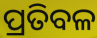
ପ୍ରତିବଳ